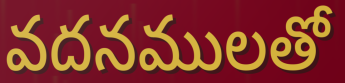
వదనములతో